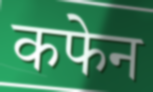
कफेन